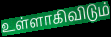
உள்ளாகிவிடும்